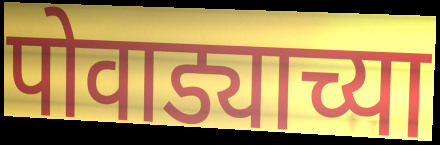
पोवाड्याच्या